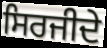
ਸਿਰਜੀਦੇ